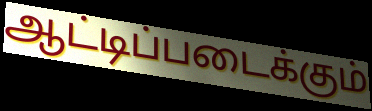
ஆட்டிப்படைக்கும்